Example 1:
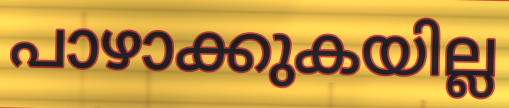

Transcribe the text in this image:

പാഴാക്കുകയില്ല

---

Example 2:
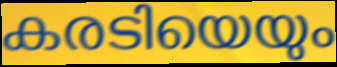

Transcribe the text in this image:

കരടിയെയും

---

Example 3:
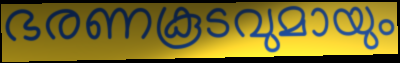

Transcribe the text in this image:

ഭരണകൂടവുമായും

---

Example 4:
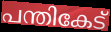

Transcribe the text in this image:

പന്തികേട്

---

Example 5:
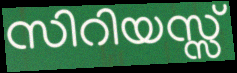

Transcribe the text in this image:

സിറിയസ്സ്